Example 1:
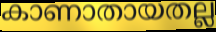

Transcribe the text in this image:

കാണാതായതല്ല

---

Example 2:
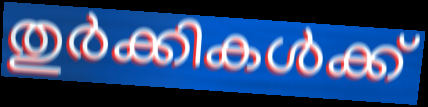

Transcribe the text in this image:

തുർക്കികൾക്ക്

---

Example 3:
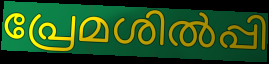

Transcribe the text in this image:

പ്രേമശിൽപ്പി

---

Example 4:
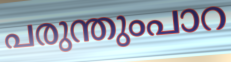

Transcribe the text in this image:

പരുന്തുംപാറ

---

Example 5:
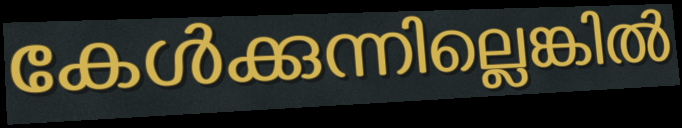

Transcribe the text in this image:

കേൾക്കുന്നില്ലെങ്കിൽ